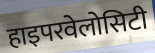
हाइपरवेलोसिटी